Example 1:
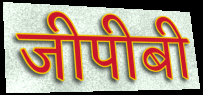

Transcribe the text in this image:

जीपीबी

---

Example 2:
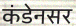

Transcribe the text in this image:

कंडेनसर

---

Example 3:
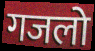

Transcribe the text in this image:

गजलो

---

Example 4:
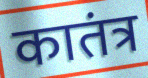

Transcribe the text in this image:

कातंत्र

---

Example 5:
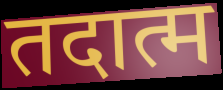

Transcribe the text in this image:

तदात्म